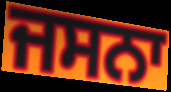
ਜਸਨਾ